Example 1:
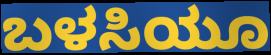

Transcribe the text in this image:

ಬಳಸಿಯೂ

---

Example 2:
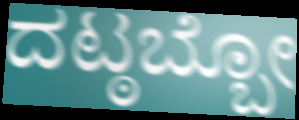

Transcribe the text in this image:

ದಟ್ಠಬ್ಬೋ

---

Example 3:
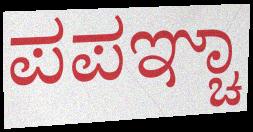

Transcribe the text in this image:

ಪಪಞ್ಚಾ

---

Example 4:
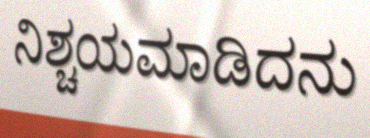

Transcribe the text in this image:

ನಿಶ್ಚಯಮಾಡಿದನು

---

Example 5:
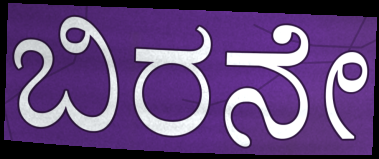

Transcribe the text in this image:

ಬಿರನೇ